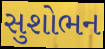
સુશોભન